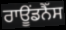
ਰਾਊਂਡਨੈੱਸ